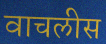
वाचलीस